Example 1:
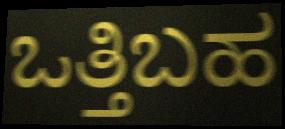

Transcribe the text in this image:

ಒತ್ತಿಬಹ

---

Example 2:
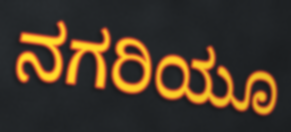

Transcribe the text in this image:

ನಗರಿಯೂ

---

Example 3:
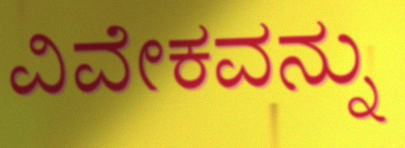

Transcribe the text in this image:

ವಿವೇಕವನ್ನು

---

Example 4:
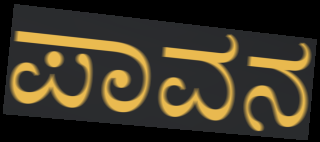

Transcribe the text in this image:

ಪಾವನ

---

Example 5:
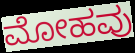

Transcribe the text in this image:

ಮೋಹವು